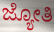
ಜ್ಯೋತಿ